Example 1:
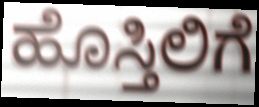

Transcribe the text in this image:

ಹೊಸ್ತಿಲಿಗೆ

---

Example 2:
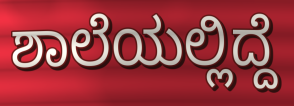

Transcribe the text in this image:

ಶಾಲೆಯಲ್ಲಿದ್ದೆ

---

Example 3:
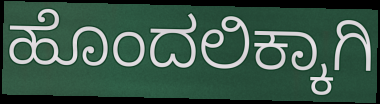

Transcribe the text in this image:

ಹೊಂದಲಿಕ್ಕಾಗಿ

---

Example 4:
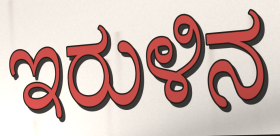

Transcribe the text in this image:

ಇರುಳಿನ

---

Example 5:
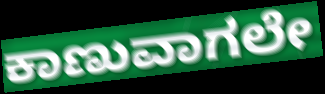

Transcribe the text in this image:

ಕಾಣುವಾಗಲೇ